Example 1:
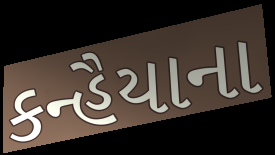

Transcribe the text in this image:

કન્હૈયાના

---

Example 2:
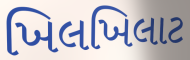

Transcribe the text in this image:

ખિલખિલાટ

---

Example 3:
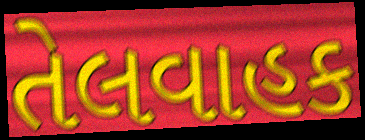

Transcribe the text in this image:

તેલવાહક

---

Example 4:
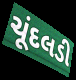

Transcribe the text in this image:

ચૂંદલડી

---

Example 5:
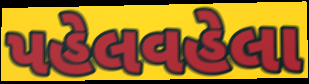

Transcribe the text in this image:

પહેલવહેલા